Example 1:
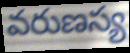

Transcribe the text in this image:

వరుణస్య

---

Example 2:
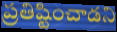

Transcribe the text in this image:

ప్రతిష్టించాడని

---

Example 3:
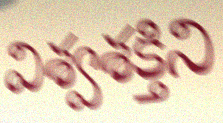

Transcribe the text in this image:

విశ్వశక్తిని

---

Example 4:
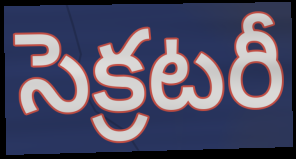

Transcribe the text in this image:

సెక్రటరీ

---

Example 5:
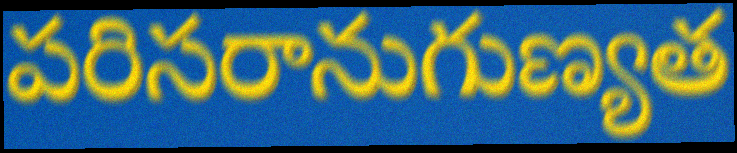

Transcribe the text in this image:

పరిసరానుగుణ్యత